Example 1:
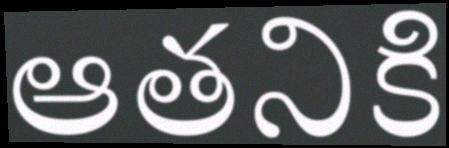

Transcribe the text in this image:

ఆతనికి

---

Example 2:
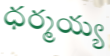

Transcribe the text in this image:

ధర్మయ్య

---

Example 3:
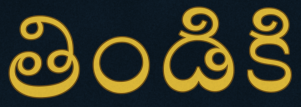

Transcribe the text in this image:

తిండికి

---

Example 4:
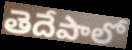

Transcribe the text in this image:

తెదేపాలో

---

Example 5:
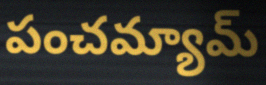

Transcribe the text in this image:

పంచమ్యామ్